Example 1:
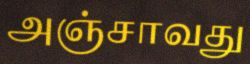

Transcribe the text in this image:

அஞ்சாவது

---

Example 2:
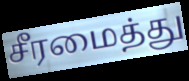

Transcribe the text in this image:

சீரமைத்து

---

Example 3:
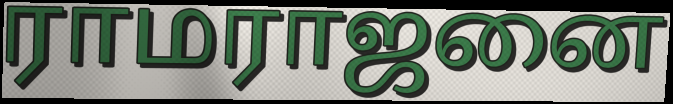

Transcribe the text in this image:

ராமராஜனை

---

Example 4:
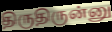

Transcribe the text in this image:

திருதிருன்னு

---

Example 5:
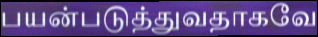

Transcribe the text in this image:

பயன்படுத்துவதாகவே